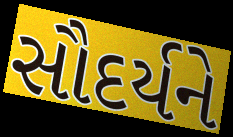
સૌદર્યને